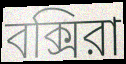
বক্সিরা